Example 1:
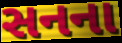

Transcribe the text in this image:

સનના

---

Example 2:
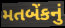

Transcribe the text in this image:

મતબેંકનું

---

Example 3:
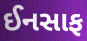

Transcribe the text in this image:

ઈનસાફ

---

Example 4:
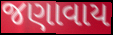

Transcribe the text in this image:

જણાવાય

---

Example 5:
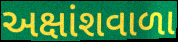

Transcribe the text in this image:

અક્ષાંશવાળા